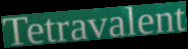
Tetravalent